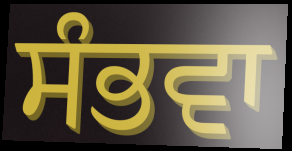
ਸੰਭਵਾ